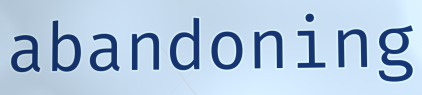
abandoning